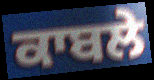
ਕਾਬਲੇ